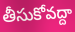
తీసుకోవద్దా